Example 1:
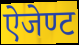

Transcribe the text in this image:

ऐजेण्ट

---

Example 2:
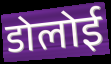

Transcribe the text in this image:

डोलोई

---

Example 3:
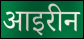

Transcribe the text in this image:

आइरीन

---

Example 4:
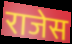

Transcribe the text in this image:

राजेस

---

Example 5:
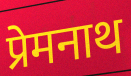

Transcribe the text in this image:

प्रेमनाथ